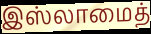
இஸ்லாமைத்